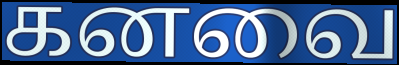
கனவை